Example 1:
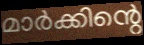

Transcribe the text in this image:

മാർക്കിന്റെ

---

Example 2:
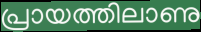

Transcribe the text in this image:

പ്രായത്തിലാണു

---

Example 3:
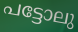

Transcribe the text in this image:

പട്ടോലു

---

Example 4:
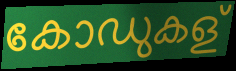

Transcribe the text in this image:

കോഡുകള്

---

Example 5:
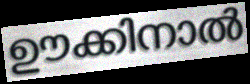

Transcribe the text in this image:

ഊക്കിനാൽ